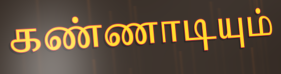
கண்ணாடியும்